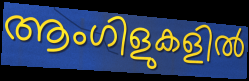
ആംഗിളുകളിൽ